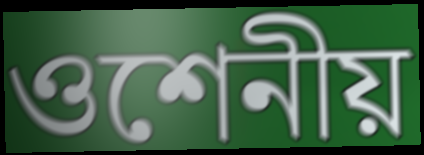
ওশেনীয়